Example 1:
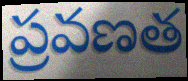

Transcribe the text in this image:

ప్రవణత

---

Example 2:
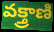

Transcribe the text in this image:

వక్త్రాణి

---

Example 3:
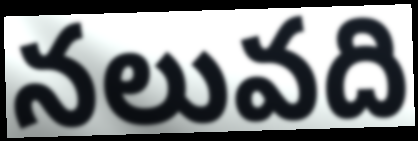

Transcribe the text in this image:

నలువది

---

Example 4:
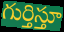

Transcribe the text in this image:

గుర్తిస్తూ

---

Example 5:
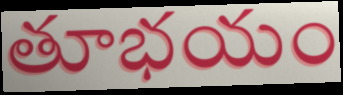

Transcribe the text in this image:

తూభయం